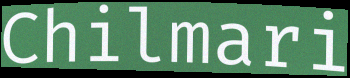
Chilmari